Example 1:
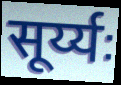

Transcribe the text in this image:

सूर्य्यः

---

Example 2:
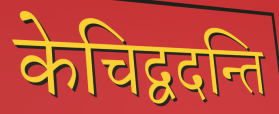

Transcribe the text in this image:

केचिद्वदन्ति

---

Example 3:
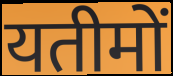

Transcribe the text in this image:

यतीमों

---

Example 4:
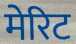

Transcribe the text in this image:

मेरिट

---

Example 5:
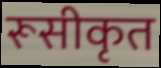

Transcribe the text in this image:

रूसीकृत